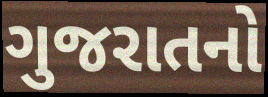
ગુજરાતનો